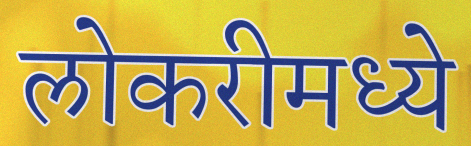
लोकरीमध्ये